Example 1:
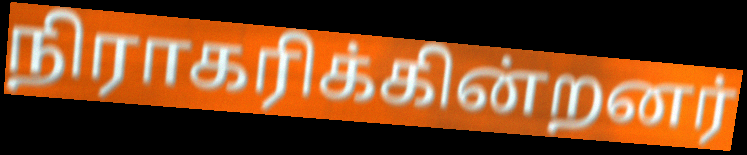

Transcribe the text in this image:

நிராகரிக்கின்றனர்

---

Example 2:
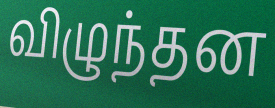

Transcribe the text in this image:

விழுந்தன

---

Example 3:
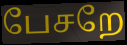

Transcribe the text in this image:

பேசறே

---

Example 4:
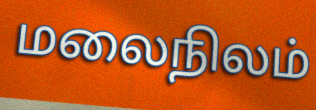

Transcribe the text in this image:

மலைநிலம்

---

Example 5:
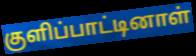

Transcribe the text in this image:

குளிப்பாட்டினாள்